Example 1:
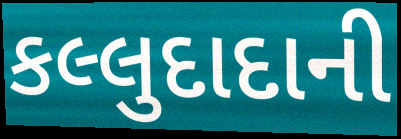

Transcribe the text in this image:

કલ્લુદાદાની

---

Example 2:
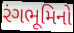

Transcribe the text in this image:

રંગભૂમિનો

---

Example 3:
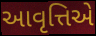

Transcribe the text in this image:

આવૃત્તિએ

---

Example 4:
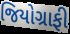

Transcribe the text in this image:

જિયોગ્રાફી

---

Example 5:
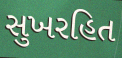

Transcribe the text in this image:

સુખરહિત